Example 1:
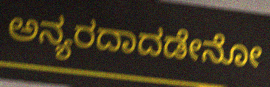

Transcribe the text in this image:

ಅನ್ಯರದಾದಡೇನೋ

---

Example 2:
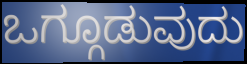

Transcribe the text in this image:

ಒಗ್ಗೂಡುವುದು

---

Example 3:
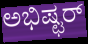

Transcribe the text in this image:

ಅಭಿಷ್ಟರ್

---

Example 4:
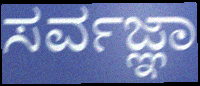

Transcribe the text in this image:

ಸರ್ವಜ್ಞಾ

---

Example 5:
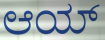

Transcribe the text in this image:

ಆಯ್